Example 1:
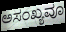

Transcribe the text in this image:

ಅಸಂಖ್ಯವೂ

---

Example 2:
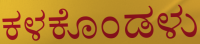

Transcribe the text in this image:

ಕಳಕೊಂಡಳು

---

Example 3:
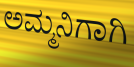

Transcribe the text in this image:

ಅಮ್ಮನಿಗಾಗಿ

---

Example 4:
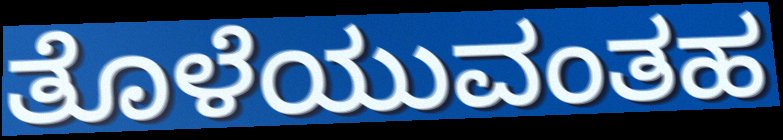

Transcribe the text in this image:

ತೊಳೆಯುವಂತಹ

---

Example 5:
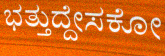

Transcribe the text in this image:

ಭತ್ತುದ್ದೇಸಕೋ